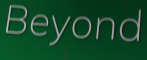
Beyond